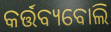
କର୍ତ୍ତବ୍ୟବୋଲି